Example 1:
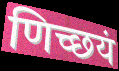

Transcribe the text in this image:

णिच्छयं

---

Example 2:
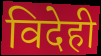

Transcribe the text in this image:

विदेही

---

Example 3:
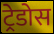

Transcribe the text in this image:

ट्रेडोस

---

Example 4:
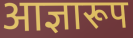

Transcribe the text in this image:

आज्ञारूप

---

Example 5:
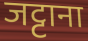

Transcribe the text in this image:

जट्टाना